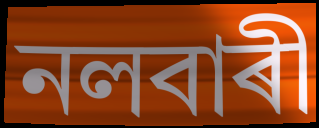
নলবাৰী